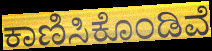
ಕಾಣಿಸಿಕೊಂಡಿವೆ